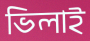
ভিলাই